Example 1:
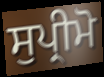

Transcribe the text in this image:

ਸੁਪ੍ਰੀਮੋ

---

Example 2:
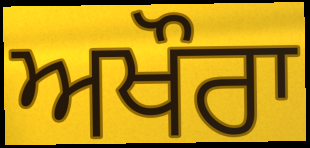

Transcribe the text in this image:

ਅਖੌਰਾ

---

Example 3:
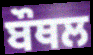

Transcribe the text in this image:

ਬੌਥਲ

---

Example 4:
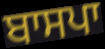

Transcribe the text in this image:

ਬਾਸਪਾ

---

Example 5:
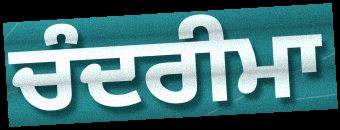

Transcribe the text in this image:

ਚੰਦਰੀਮਾ